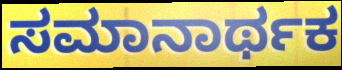
ಸಮಾನಾರ್ಥಕ